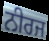
ਨੀਰਜ